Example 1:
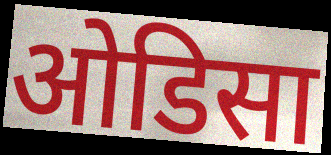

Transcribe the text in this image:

ओडिसा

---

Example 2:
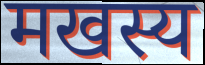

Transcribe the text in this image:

मखस्य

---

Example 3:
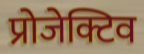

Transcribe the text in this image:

प्रोजेक्टिव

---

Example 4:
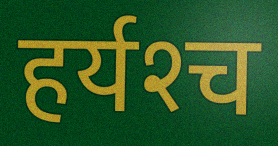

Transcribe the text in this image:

हर्यश्च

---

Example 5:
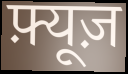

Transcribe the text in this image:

फ़्यूज़